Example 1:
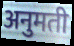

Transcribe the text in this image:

अनुमती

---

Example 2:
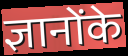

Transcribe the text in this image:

ज्ञानोंके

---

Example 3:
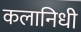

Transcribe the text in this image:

कलानिधी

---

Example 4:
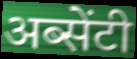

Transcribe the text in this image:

अब्सेंटी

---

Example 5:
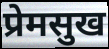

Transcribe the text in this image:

प्रेमसुख